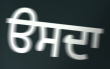
ੳਸਦਾ